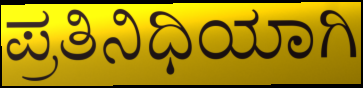
ಪ್ರತಿನಿಧಿಯಾಗಿ